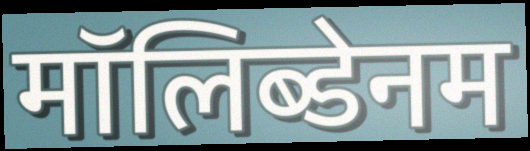
मॉलिब्डेनम